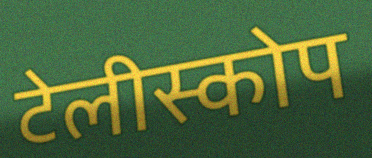
टेलीस्कोप